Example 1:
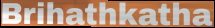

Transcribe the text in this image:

Brihathkatha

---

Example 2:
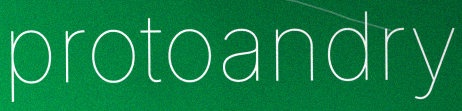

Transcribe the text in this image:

protoandry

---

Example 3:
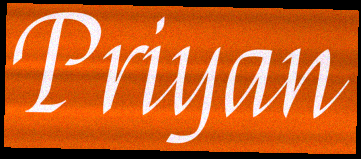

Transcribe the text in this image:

Priyan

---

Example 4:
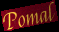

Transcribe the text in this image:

Pomal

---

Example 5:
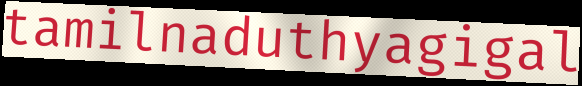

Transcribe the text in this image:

tamilnaduthyagigal